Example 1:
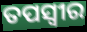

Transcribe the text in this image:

ତପସ୍ଵୀର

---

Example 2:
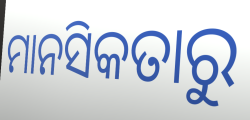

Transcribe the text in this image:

ମାନସିକତାରୁ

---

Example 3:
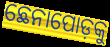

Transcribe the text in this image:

ଛେନାପୋଡ଼କୁ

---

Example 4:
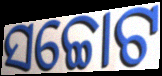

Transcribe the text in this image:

ସଚ୍ଚୋଟ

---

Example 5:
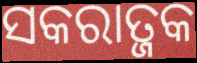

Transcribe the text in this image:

ସକରାତ୍ଜକ